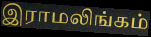
இராமலிங்கம்